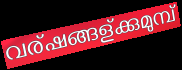
വര്ഷങ്ങള്ക്കുമുമ്പ്